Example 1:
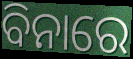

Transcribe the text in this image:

ବିନାରେ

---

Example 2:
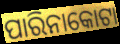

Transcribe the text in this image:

ପାରିନାକୋଟା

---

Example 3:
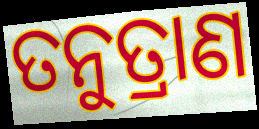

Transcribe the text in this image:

ତନୁତ୍ରାଣ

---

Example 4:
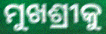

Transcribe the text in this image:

ମୁଖଶ୍ରୀକୁ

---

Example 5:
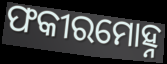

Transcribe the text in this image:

ଫକୀରମୋହ୍ନ